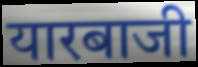
यारबाजी